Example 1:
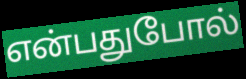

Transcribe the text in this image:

என்பதுபோல்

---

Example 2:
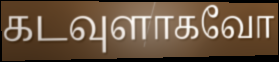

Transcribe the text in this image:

கடவுளாகவோ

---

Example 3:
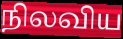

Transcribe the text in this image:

நிலவிய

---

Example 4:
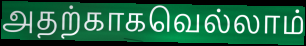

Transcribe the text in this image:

அதற்காகவெல்லாம்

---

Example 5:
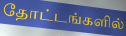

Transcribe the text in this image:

தோட்டங்களில்